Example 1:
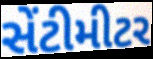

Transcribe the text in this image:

સેંટીમીટર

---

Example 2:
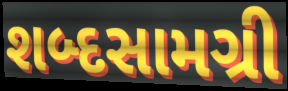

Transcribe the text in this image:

શબ્દસામગ્રી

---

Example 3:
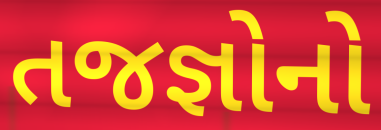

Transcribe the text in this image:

તજજ્ઞોનો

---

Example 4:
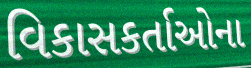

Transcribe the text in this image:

વિકાસકર્તાઓના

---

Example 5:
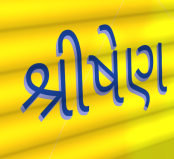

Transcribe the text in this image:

શ્રીષેણ